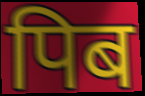
पिब